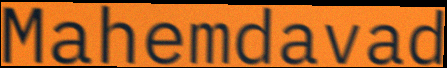
Mahemdavad